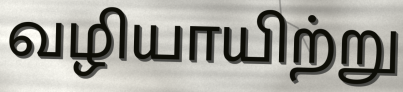
வழியாயிற்று